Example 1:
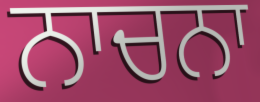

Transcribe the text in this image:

ਨਾਚਨਾ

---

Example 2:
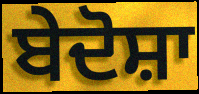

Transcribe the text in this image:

ਬੇਦੋਸ਼ਾ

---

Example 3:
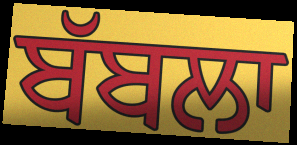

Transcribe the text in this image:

ਬੱਬਲਾ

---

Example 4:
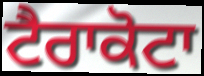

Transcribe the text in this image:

ਟੈਰਾਕੋਟਾ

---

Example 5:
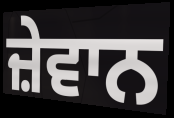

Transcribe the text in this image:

ਜ਼ੇਵਾਨ